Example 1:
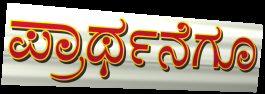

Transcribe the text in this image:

ಪ್ರಾರ್ಥನೆಗೂ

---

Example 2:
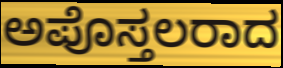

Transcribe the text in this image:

ಅಪೊಸ್ತಲರಾದ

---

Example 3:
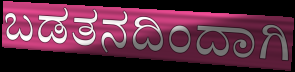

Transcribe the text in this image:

ಬಡತನದಿಂದಾಗಿ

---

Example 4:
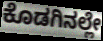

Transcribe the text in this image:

ಕೊಡಗಿನಲ್ಲೇ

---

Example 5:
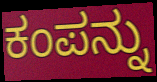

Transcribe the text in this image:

ಕಂಪನ್ನು